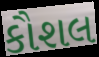
કૌશલ